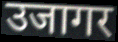
उजागर